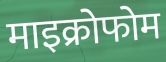
माइक्रोफोम